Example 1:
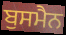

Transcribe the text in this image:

ਬੁਸਮੈਨ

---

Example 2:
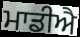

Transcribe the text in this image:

ਮਾਡੀਐ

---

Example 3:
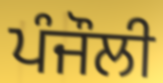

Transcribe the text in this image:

ਪੰਜੌਲੀ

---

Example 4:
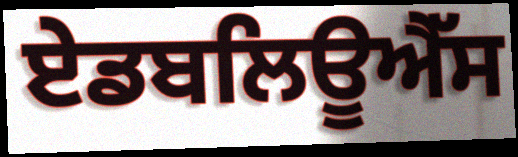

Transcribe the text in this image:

ਏਡਬਲਿਊਐੱਸ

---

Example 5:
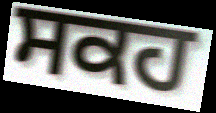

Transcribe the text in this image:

ਸਕਹ